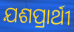
ଯଶପ୍ରାର୍ଥୀ